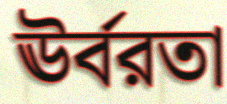
ঊর্বরতা